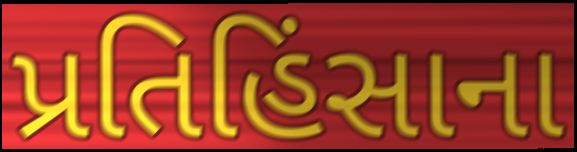
પ્રતિહિંસાના